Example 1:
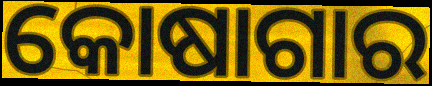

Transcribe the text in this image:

କୋଷାଗାର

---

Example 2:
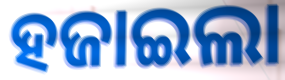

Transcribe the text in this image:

ହଜାଇଲା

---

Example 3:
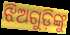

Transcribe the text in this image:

ଝିଅଗୁଡ଼ିଙ୍କୁ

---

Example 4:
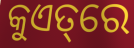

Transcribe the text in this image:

କୁଏତ୍‌ରେ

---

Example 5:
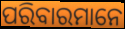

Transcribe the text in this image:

ପରିବାରମାନେ